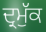
ਦ੍ਰਮੁੱਕ